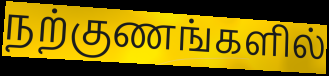
நற்குணங்களில்